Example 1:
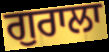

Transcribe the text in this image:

ਗੁਰਾਲਾ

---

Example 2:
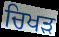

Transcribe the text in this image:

ਚਿਖੜ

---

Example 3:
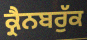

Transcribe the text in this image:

ਕ੍ਰੈਨਬਰੁੱਕ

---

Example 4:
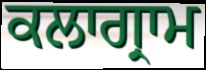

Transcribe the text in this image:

ਕਲਾਗ੍ਰਾਮ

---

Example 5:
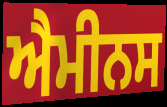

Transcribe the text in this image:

ਐਮੀਨਸ